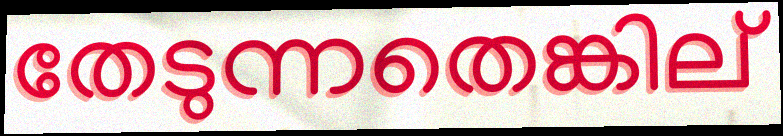
തേടുന്നതെങ്കില്